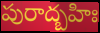
పురాద్బహిః